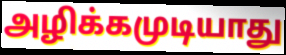
அழிக்கமுடியாது